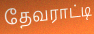
தேவராட்டி